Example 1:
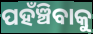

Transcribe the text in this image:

ପହଁଞ୍ଚିବାକୁ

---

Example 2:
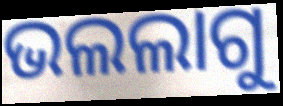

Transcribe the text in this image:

ଭଲଲାଗୁ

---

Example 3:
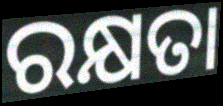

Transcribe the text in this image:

ରକ୍ଷତା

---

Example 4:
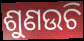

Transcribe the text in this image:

ଶୁଣଉଚି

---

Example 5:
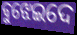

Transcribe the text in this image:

ବୁଝେଇଦେ